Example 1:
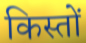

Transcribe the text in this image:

किस्तों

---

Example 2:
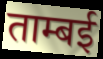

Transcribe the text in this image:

ताम्बई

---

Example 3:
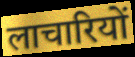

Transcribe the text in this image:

लाचारियों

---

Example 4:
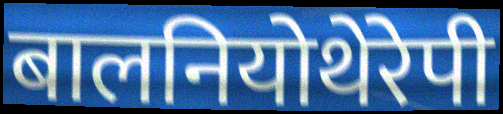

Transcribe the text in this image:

बालनियोथेरेपी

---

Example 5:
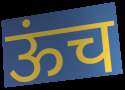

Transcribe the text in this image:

ऊंच